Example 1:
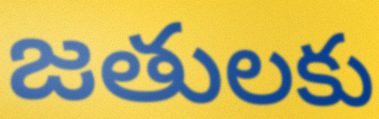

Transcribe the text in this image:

జతులకు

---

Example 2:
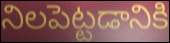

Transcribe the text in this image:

నిలపెట్టడానికి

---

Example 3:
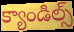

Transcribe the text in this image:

క్యాండిల్స్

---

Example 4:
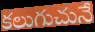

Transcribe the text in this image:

కలుగుచునే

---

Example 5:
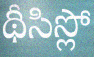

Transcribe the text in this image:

థీసిస్లో